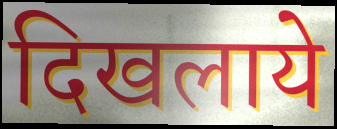
दिखलाये